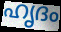
ഹൃദം